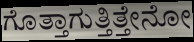
ಗೊತ್ತಾಗುತ್ತಿತ್ತೇನೋ